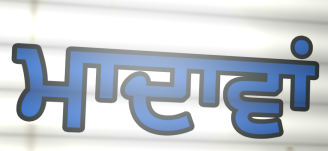
ਮਾਦਾਵਾਂ